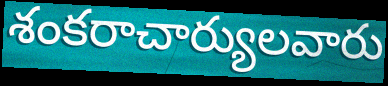
శంకరాచార్యులవారు